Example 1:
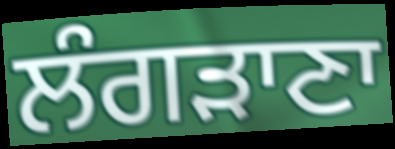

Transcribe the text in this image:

ਲੰਗੜਾਣਾ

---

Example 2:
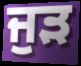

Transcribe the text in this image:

ਜੁੜ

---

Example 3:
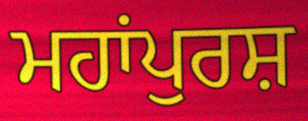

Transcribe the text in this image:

ਮਹਾਂਪੁਰਸ਼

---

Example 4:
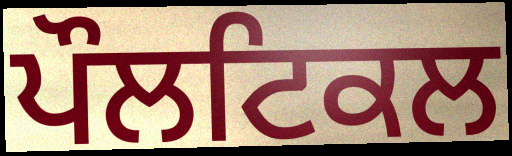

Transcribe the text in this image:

ਪੌਲਟਿਕਲ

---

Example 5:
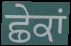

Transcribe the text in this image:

ਛੇਕਾਂ